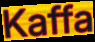
Kaffa